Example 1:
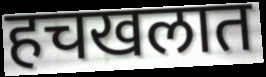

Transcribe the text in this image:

हचखलात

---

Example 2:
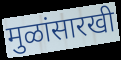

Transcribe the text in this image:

मुळांसारखी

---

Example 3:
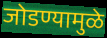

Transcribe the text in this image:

जोडण्यामुळे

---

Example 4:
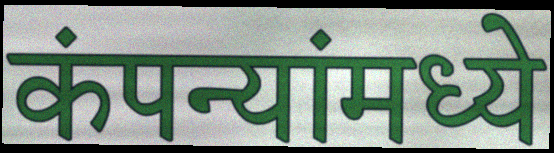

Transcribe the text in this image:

कंपन्यांमध्ये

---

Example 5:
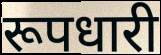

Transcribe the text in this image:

रूपधारी